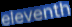
eleventh